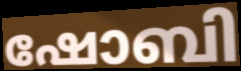
ഷോബി